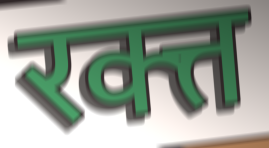
रक्त्त